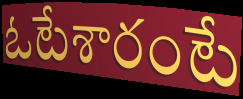
ఓటేశారంటే